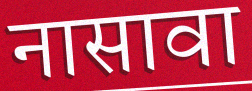
नासावा